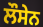
ਲੌਸੇਨ